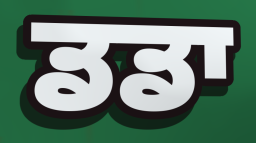
ਡਡਾ